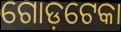
ଗୋଡ଼ଟେକା